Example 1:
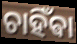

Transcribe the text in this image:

ଚାହିଁଵା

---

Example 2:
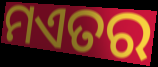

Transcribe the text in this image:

ମଏତର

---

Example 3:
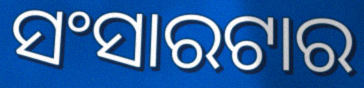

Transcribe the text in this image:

ସଂସାରଟାର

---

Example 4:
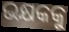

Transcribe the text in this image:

ଭକ୍ଷକକୁ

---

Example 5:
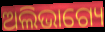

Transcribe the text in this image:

ଅଲିଭାଗ୍ୟେ